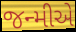
જન્મીએ